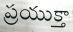
ప్రయుక్తా